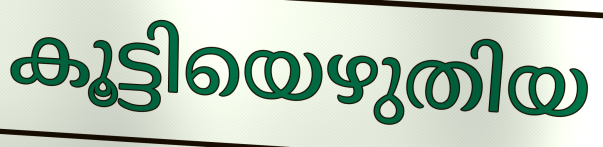
കൂട്ടിയെഴുതിയ